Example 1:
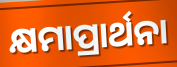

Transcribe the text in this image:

କ୍ଷମାପ୍ରାର୍ଥନା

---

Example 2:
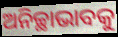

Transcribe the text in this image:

ଅନିଚ୍ଛାଭାବକୁ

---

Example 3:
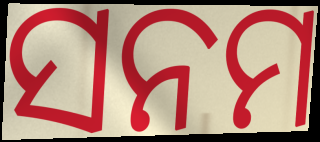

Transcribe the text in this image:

ସନମ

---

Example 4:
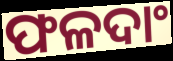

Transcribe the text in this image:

ଫଳଦାଂ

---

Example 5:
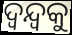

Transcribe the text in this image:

ଦ୍ଵନ୍ଦ୍ଵକୁ